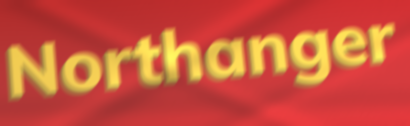
Northanger